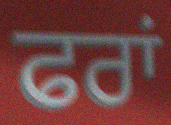
ਫਰਾਂ